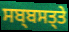
ਸਬ੍ਬਸਤ੍ਤੇ